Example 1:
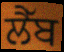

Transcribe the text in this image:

ਲੈੱਬ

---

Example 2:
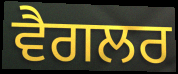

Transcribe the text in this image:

ਵੈਗਲਰ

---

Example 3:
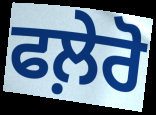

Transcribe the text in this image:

ਫਲ਼ੇਰੋ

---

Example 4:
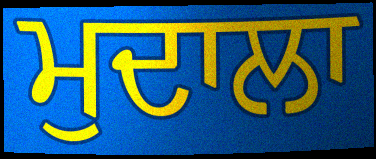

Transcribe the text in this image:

ਮੁਦਾਲਾ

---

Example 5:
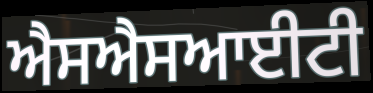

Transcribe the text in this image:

ਐਸਐਸਆਈਟੀ